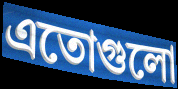
এতোগুলো